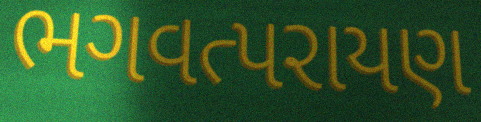
ભગવત્પરાયણ